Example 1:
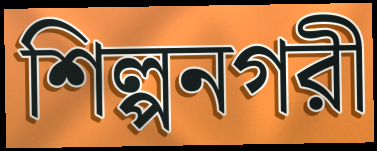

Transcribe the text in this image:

শিল্পনগরী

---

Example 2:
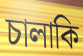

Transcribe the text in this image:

চালাকি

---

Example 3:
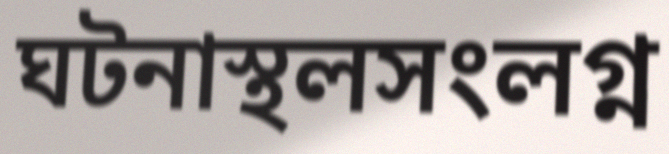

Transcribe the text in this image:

ঘটনাস্থলসংলগ্ন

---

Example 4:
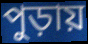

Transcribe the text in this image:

পুড়ায়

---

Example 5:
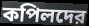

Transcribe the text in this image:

কপিলদের